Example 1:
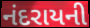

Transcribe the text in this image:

નંદરાયની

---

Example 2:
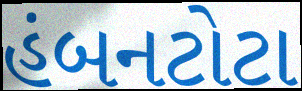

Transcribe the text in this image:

હંબનટોટા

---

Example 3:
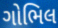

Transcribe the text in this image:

ગોભિલ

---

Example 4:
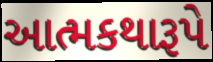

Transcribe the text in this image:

આત્મકથારૂપે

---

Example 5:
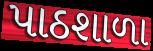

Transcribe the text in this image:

પાઠશાળા